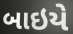
બાઇયે